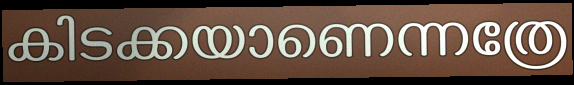
കിടക്കയാണെന്നത്രേ